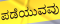
ಪಡೆಯುವವು